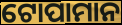
ଟୋପାମାନ